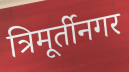
त्रिमूर्तीनगर